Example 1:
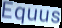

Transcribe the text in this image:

Equus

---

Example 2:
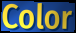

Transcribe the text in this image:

Color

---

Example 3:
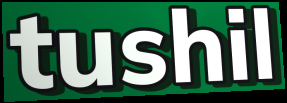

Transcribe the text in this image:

tushil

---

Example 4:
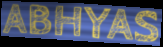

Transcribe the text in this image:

ABHYAS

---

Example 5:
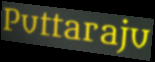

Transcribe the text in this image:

Puttaraju